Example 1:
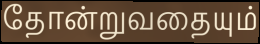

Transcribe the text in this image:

தோன்றுவதையும்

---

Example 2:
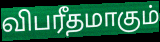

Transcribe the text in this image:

விபரீதமாகும்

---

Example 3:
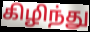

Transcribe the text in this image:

கிழிந்து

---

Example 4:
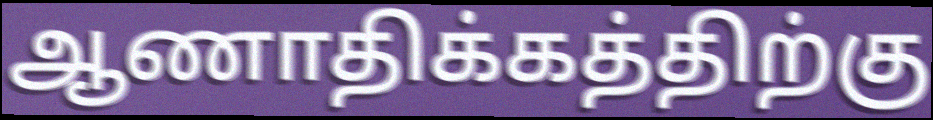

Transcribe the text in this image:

ஆணாதிக்கத்திற்கு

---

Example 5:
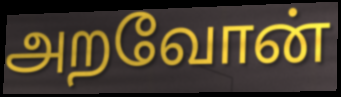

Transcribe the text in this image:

அறவோன்